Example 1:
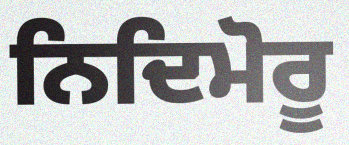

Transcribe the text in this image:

ਨਿਦਿਮੋਰੂ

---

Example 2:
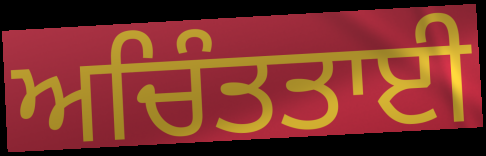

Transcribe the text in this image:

ਅਚਿੰਤਤਾਈ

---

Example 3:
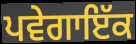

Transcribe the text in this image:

ਪਵੇਗਾਇੱਕ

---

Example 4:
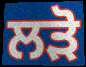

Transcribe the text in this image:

ਲੜੋ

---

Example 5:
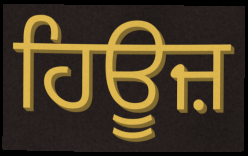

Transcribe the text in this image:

ਹਿਊਜ਼